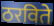
ठरविते